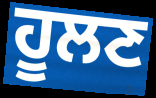
ਹੂਲਣ